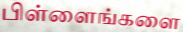
பிள்ளைங்களை